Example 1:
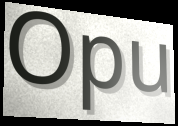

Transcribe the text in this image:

Opu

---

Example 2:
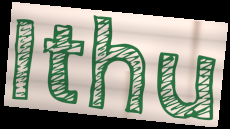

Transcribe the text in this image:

Ithu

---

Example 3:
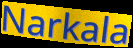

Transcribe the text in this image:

Narkala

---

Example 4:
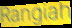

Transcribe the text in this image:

Rangiah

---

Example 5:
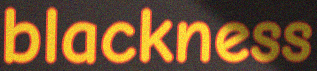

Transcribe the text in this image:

blackness